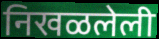
निखळलेली